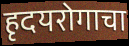
हृदयरोगाचा